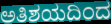
ಅತಿಶಯದಿಂದ